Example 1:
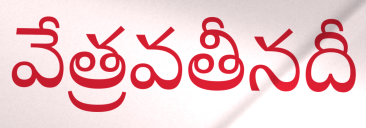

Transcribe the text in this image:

వేత్రవతీనదీ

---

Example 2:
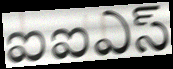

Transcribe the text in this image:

ఐఐఎస్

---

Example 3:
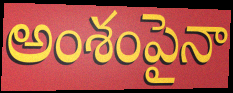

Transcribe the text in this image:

అంశంపైనా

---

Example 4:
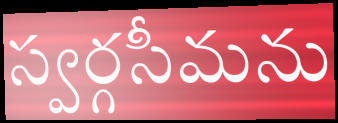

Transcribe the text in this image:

స్వర్గసీమను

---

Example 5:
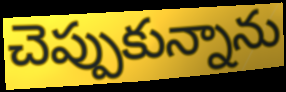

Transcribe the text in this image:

చెప్పుకున్నాను